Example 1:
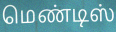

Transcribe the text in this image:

மெண்டிஸ்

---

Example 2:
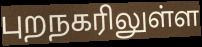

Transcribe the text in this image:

புறநகரிலுள்ள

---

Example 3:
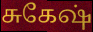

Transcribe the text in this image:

சுகேஷ்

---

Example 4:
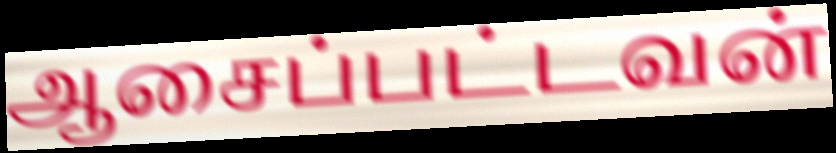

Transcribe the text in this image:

ஆசைப்பட்டவன்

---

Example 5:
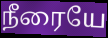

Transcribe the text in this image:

நீரையே